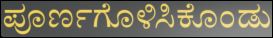
ಪೂರ್ಣಗೊಳಿಸಿಕೊಂಡು